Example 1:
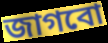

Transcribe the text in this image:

জাগবো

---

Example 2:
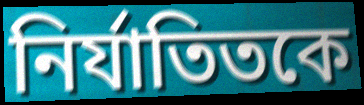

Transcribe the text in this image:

নির্যাতিতকে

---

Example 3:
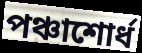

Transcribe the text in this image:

পঞ্চাশোর্ধ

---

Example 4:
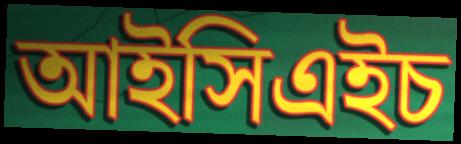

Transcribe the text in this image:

আইসিএইচ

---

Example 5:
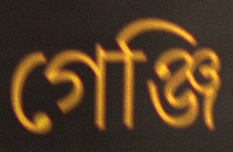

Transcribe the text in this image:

গেঞ্জি